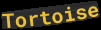
Tortoise